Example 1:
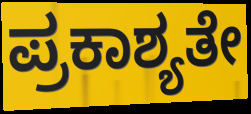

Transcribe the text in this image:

ಪ್ರಕಾಶ್ಯತೇ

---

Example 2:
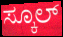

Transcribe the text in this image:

ಸ್ಕೂಲ್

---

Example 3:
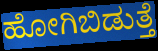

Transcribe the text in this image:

ಹೋಗಿಬಿಡುತ್ತೆ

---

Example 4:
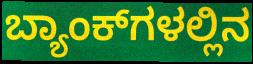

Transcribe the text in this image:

ಬ್ಯಾಂಕ್‌ಗಳಲ್ಲಿನ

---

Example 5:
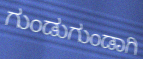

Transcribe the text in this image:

ಗುಂಡುಗುಂಡಾಗಿ